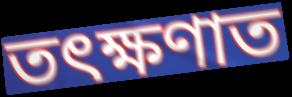
তৎক্ষণাত